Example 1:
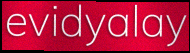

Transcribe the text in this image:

evidyalay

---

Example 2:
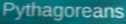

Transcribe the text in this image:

Pythagoreans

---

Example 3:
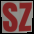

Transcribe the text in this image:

SZ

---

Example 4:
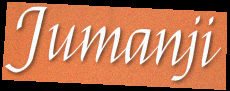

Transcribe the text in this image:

Jumanji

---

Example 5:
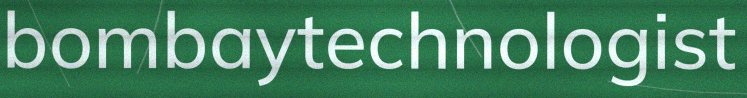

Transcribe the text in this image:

bombaytechnologist